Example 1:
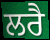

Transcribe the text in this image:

ਲਰੈ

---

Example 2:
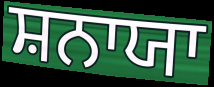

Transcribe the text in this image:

ਸ਼ਨਾਯਾ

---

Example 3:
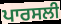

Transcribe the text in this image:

ਪਾਰਸਲੀ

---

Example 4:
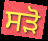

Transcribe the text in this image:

ਸੜੋ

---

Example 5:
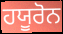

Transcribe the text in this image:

ਹਯੂਰੋਨ